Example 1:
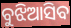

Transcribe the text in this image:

ବୁଝିଆସିବ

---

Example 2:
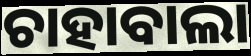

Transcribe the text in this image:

ଚାହାବାଲା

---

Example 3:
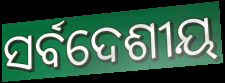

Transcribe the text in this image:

ସର୍ବଦେଶୀୟ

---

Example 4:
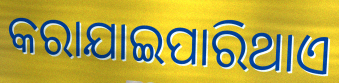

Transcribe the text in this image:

କରାଯାଇପାରିଥାଏ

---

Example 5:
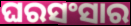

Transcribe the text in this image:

ଘରସଂସାର